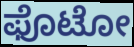
ಫೊಟೋ